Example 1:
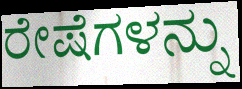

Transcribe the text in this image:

ರೇಷೆಗಳನ್ನು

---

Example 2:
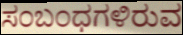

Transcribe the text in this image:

ಸಂಬಂಧಗಳಿರುವ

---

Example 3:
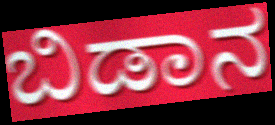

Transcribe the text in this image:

ಬಿಡಾನ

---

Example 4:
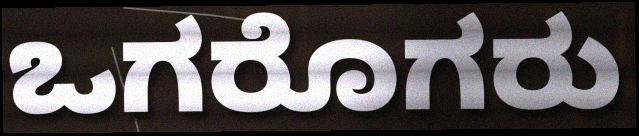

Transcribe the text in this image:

ಒಗರೊಗರು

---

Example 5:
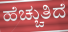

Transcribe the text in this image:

ಹೆಚ್ಚುತಿದೆ